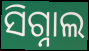
ସିଗ୍ନାଲ